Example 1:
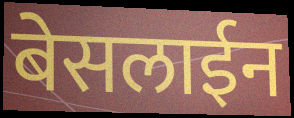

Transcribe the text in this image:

बेसलाईन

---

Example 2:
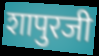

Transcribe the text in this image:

शापुरजी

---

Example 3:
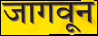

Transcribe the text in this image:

जागवून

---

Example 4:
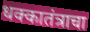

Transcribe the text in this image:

धक्कातंत्राचा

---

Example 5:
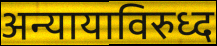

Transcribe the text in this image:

अन्यायाविरुध्द